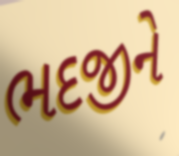
ભદજીને